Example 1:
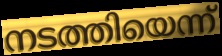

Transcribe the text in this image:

നടത്തിയെന്ന്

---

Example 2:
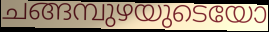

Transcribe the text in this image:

ചങ്ങമ്പുഴയുടെയോ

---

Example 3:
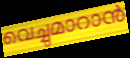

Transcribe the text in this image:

വെച്ചുമാറാൻ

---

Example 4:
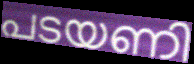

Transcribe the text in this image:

പടയണി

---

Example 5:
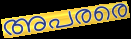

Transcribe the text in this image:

അപരരെ